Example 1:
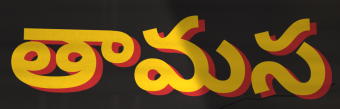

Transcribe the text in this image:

తామస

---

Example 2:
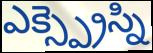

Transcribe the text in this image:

ఎక్స్ప్రెస్ని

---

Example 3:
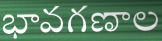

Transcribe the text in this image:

భావగణాల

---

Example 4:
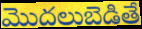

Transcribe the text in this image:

మొదలుబెడితే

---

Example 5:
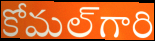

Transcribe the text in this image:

కోమల్‌గారి